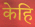
केहि